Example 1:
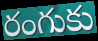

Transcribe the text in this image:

రంగుకు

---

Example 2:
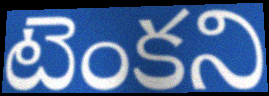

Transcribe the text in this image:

టెంకని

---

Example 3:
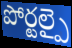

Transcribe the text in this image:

పోర్టల్పై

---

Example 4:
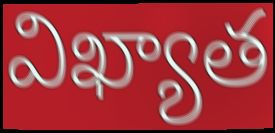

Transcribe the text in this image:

విఖ్యాత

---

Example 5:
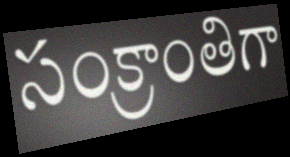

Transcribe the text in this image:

సంక్రాంతిగా